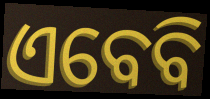
ଏବେବି